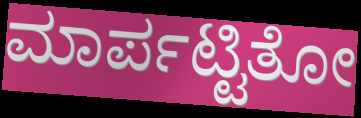
ಮಾರ್ಪಟ್ಟಿತೋ